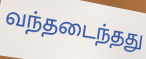
வந்தடைந்தது